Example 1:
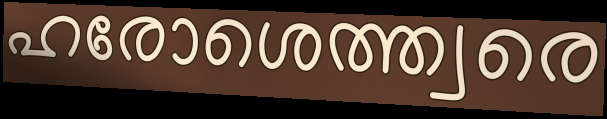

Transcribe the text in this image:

ഹരോശെത്ത്വരെ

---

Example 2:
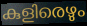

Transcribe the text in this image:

കുളിരെഴും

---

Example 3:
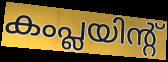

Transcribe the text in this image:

കംപ്ലയിന്റ്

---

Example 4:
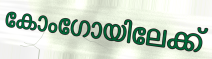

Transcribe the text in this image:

കോംഗോയിലേക്ക്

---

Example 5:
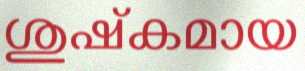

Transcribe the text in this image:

ശുഷ്‌കമായ